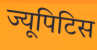
ज्यूपिटिस